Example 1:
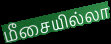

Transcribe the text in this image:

மீசையில்லா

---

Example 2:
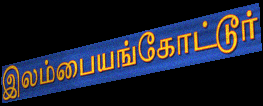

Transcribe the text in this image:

இலம்பையங்கோட்டூர்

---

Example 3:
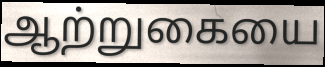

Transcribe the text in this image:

ஆற்றுகையை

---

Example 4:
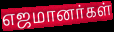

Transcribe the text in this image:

எஜமானர்கள்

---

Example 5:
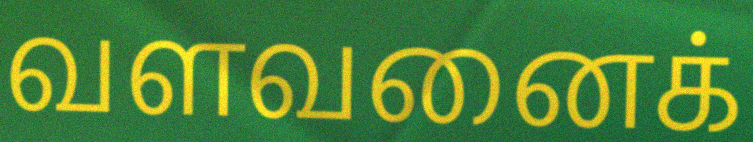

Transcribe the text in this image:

வளவனைக்